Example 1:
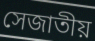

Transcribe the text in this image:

সেজাতীয়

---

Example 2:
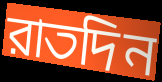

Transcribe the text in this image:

রাতদিন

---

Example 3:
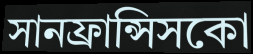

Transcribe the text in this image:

সানফ্রান্সিসকো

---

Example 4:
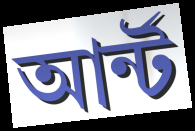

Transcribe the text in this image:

আর্ন্ট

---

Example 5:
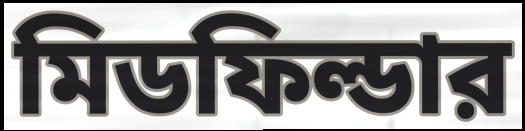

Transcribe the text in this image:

মিডফিল্ডার